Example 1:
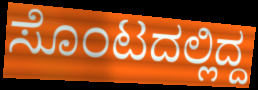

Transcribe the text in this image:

ಸೊಂಟದಲ್ಲಿದ್ದ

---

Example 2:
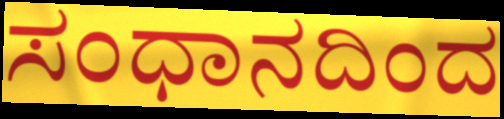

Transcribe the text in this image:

ಸಂಧಾನದಿಂದ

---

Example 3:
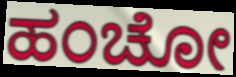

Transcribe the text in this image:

ಹಂಚೋ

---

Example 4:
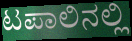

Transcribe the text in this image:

ಟಪಾಲಿನಲ್ಲಿ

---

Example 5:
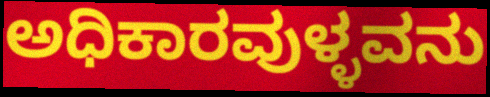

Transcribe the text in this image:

ಅಧಿಕಾರವುಳ್ಳವನು